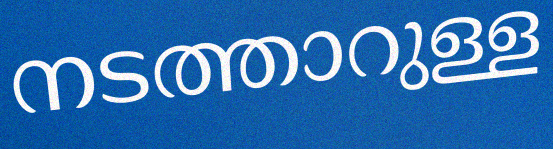
നടത്താറുള്ള